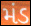
મંડ